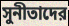
সুনীতাদের